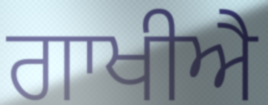
ਗਾਖੀਐ